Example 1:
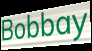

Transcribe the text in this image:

Bobbay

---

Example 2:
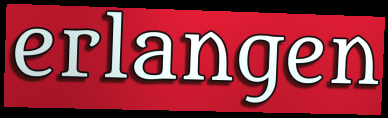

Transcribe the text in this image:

erlangen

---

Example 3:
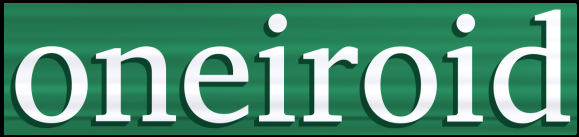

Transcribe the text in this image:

oneiroid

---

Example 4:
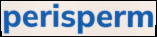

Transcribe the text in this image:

perisperm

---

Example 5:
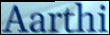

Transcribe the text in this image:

Aarthi